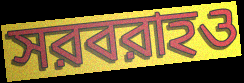
সরবরাহও